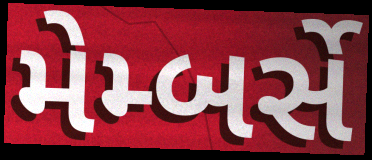
મેમ્બર્સે